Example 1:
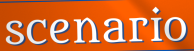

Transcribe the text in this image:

scenario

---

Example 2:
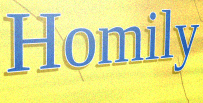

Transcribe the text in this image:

Homily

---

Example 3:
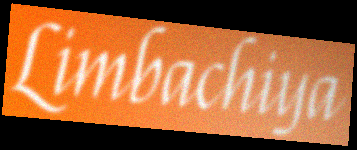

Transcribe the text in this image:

Limbachiya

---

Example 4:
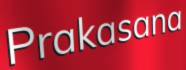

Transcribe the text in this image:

Prakasana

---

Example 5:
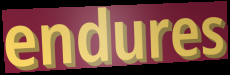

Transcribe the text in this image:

endures